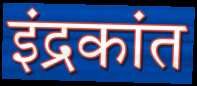
इंद्रकांत